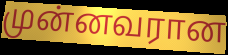
முன்னவரான